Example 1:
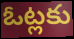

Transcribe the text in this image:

ఓట్లకు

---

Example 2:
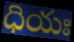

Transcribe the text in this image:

ధియః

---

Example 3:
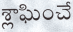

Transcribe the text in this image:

శ్లాఘించే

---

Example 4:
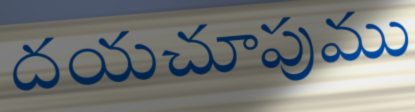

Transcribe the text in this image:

దయచూపుము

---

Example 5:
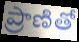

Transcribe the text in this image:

ప్రాణితో